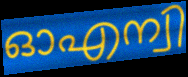
ഓഎന്വി